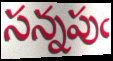
సన్నపుఁ